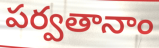
పర్వతానాం